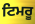
ਟਿਮਰੂ